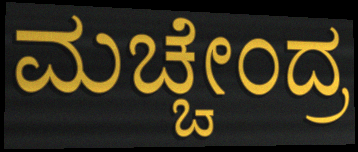
ಮಚ್ಚೇಂದ್ರ